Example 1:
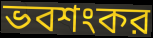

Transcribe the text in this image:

ভবশংকর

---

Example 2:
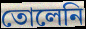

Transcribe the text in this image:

তোলেনি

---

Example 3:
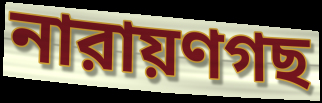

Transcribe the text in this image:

নারায়ণগছ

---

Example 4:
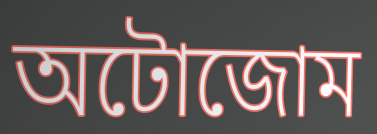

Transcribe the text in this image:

অটোজোম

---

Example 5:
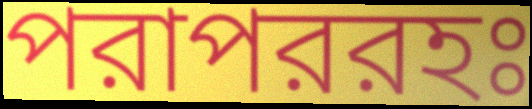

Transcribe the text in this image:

পরাপররহঃ